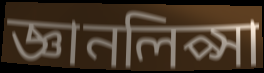
জ্ঞানলিপ্সা